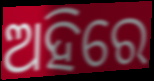
ଅହିରେ